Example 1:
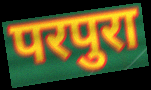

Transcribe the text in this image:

परपुरा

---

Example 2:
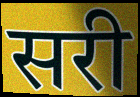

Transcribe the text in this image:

सरी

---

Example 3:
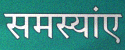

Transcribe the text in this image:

समस्यांए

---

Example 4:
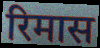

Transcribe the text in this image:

रिमास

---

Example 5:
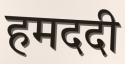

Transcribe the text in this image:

हमददी